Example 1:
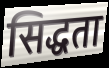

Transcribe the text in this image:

सिद्धता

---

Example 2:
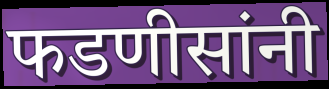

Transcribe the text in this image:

फडणीसांनी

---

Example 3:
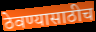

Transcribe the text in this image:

ठेवण्यासाठीच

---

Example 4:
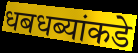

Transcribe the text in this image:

धबधब्यांकडे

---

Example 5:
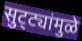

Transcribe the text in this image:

सुट्ट्यांमुळे